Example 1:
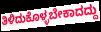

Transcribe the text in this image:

ತಿಳಿದುಕೊಳ್ಳಬೇಕಾದದ್ದು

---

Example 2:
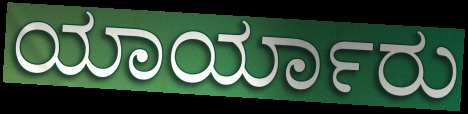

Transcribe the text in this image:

ಯಾರ್ಯಾರು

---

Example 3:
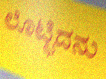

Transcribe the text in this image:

ಲೊಟ್ಟಿದನು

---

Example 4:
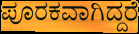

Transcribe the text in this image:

ಪೂರಕವಾಗಿದ್ದರೆ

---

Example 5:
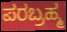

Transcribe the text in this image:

ಪರಬ್ರಹ್ಮ